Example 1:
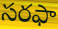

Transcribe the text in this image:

సరఫా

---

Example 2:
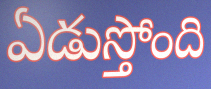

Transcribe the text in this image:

ఏడుస్తోంది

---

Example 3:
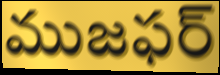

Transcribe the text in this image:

ముజఫర్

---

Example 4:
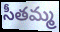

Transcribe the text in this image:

సీతమ్మ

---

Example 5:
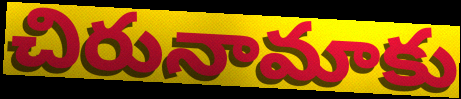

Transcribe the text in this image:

చిరునామాకు